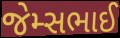
જેમ્સભાઈ